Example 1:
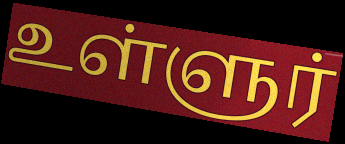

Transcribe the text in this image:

உள்ளுர்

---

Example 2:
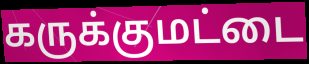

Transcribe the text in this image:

கருக்குமட்டை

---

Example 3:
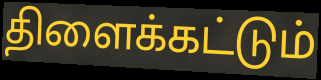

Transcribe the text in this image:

திளைக்கட்டும்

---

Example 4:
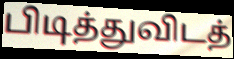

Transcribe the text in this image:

பிடித்துவிடத்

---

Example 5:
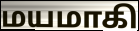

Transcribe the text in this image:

மயமாகி